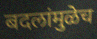
बदलांमुळेच